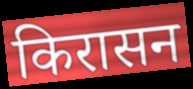
किरासन